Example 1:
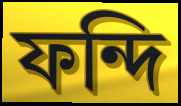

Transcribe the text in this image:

ফন্দি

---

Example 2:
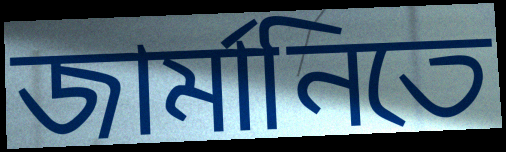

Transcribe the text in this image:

জার্মানিতে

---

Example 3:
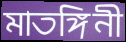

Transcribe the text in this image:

মাতঙ্গিনী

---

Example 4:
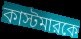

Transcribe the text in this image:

কাস্টমারকে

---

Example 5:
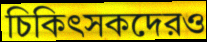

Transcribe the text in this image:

চিকিৎসকদেরও